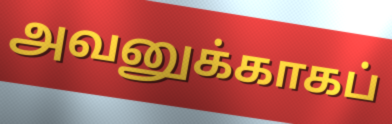
அவனுக்காகப்